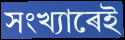
সংখ্যাৰেই